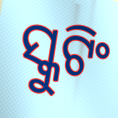
ସ୍କୁଟିଂ